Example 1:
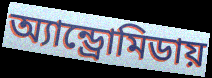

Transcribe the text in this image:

অ্যান্ড্রোমিডায়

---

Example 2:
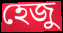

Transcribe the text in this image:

হেজু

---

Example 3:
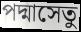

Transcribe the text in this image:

পদ্মাসেতু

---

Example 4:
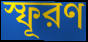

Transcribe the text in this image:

স্ফূরণ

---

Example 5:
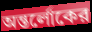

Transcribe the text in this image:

অন্তর্লোকের